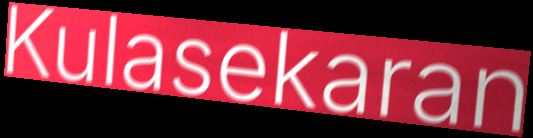
Kulasekaran